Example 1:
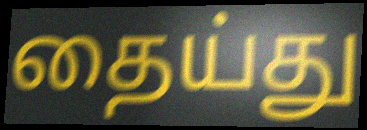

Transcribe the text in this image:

தைய்து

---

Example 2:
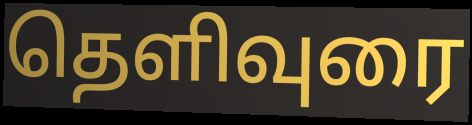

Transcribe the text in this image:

தெளிவுரை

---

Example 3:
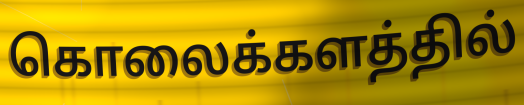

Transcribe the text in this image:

கொலைக்களத்தில்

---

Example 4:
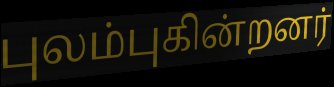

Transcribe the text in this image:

புலம்புகின்றனர்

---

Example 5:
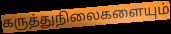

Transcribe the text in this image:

கருத்துநிலைகளையும்